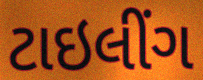
ટાઇલીંગ